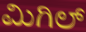
ಮಿಗಿಲ್